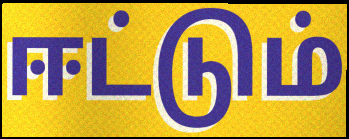
ஈட்டும்